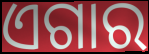
ଏଗାର